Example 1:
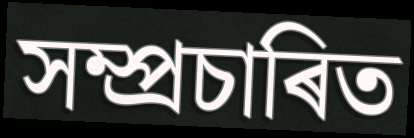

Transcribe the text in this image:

সম্প্ৰচাৰিত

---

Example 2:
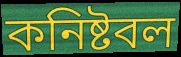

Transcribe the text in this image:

কনিষ্টবল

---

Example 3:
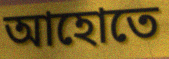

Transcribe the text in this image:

আহোতে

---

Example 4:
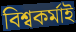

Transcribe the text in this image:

বিশ্বকৰ্মাই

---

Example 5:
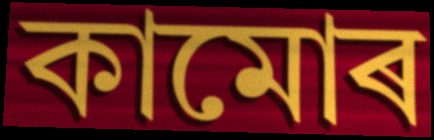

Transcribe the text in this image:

কামোৰ